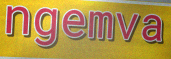
ngemva